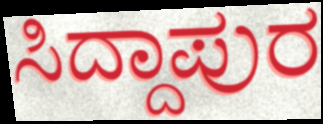
ಸಿದ್ದಾಪುರ